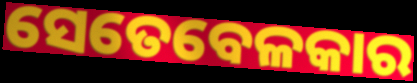
ସେତେବେଳକାର